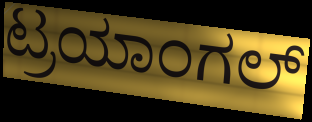
ಟ್ರಯಾಂಗಲ್